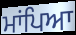
ਮਾਂਪਿਆ